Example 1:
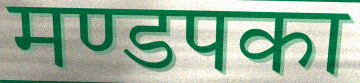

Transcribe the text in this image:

मण्डपका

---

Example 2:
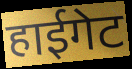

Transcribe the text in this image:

हाईगेट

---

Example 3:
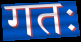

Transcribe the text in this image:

गतः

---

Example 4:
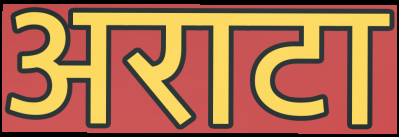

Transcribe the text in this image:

अराटा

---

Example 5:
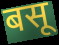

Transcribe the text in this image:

बसू